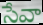
సేవా